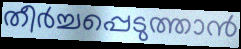
തീർച്ചപ്പെടുത്താൻ